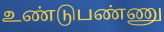
உண்டுபண்ணு